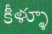
కీళ్ళూ